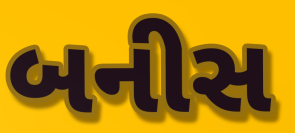
બનીસ